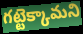
గట్టెక్కామని